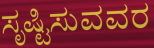
ಸೃಷ್ಟಿಸುವವರ